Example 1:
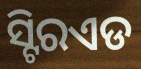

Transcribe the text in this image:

ସ୍ଟିରଏଡ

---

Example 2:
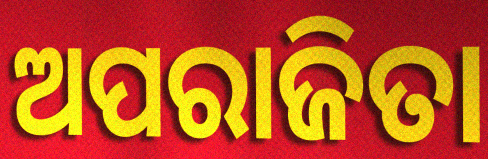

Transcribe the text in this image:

ଅପରାଜିତା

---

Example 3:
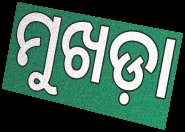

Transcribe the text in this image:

ମୁଖଡ଼ା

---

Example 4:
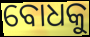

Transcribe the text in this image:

ବୋଧକୁ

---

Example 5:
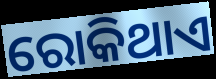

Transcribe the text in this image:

ରୋକିଥାଏ